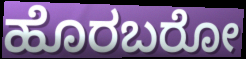
ಹೊರಬರೋ